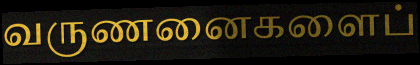
வருணனைகளைப்